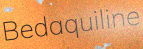
Bedaquiline